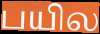
பயில